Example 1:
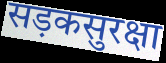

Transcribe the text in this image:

सड़कसुरक्षा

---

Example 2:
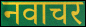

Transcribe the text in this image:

नवाचर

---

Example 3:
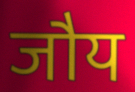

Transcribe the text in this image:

जौय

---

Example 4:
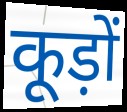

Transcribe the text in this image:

कूड़ों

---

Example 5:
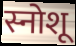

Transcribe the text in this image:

स्नोशू